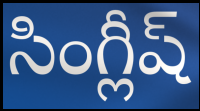
సింగ్లీష్